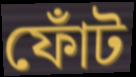
ফোঁট